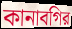
কানাবগির